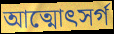
আত্মোৎসর্গ